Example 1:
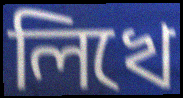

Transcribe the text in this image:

লিখে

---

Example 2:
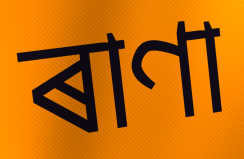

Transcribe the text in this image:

ৰাণা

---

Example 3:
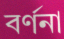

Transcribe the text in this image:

বৰ্ণনা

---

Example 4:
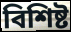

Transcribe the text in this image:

বিশিষ্ট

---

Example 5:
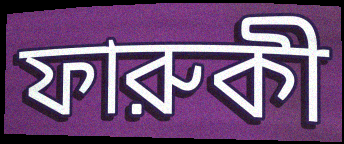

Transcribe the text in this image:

ফাৰুকী